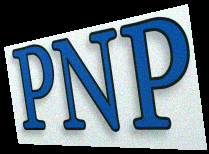
PNP